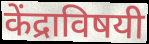
केंद्राविषयी